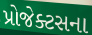
પ્રોજેક્ટસના